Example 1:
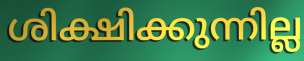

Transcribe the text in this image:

ശിക്ഷിക്കുന്നില്ല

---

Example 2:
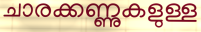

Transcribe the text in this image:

ചാരക്കണ്ണുകളുള്ള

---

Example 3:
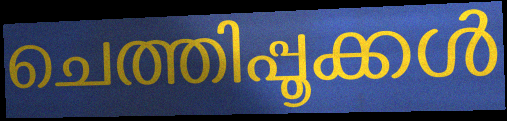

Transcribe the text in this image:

ചെത്തിപ്പൂക്കൾ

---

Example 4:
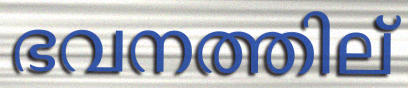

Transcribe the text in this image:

ഭവനത്തില്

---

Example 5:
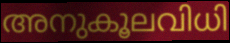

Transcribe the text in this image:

അനുകൂലവിധി